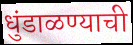
धुंडाळण्याची